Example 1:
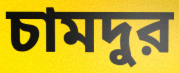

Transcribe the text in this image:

চামদুর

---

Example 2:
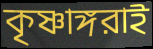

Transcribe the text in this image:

কৃষ্ণাঙ্গরাই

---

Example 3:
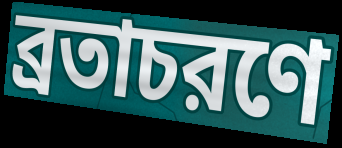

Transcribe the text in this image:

ব্রতাচরণে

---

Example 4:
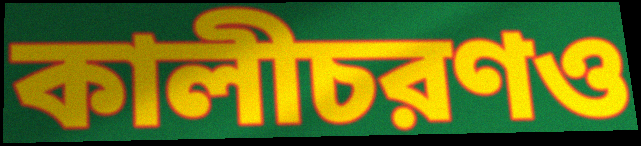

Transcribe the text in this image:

কালীচরণও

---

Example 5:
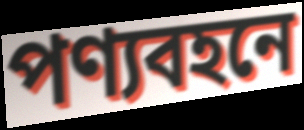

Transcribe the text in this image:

পণ্যবহনে